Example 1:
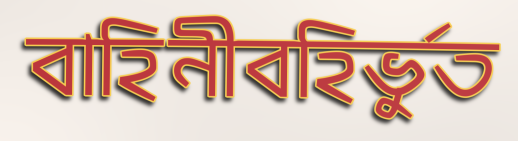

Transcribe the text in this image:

বাহিনীবহির্ভুত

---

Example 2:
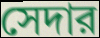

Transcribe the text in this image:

সেদার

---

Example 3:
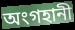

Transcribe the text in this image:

অংগহানী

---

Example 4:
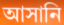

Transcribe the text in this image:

আসানি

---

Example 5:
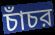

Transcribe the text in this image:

চাঁচর